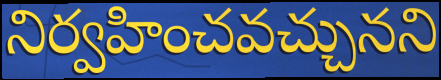
నిర్వహించవచ్చునని